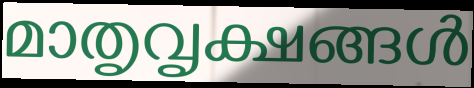
മാതൃവൃക്ഷങ്ങൾ